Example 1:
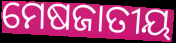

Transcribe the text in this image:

ମେଷଜାତୀୟ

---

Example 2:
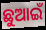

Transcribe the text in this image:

ଛୁଆଇଁ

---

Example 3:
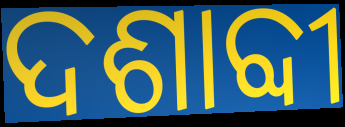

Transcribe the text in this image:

ଦଶାବ୍ଦୀ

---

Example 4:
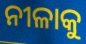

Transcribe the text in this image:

ନୀଳାକୁ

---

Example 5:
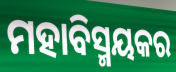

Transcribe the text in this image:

ମହାବିସ୍ମୟକର